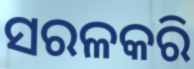
ସରଳକରି